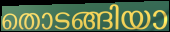
തൊടങ്ങിയാ